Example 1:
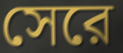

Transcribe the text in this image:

সেরে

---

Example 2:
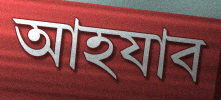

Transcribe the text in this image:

আহযাব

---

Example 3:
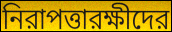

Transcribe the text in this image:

নিরাপত্তারক্ষীদের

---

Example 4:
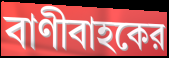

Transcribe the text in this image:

বাণীবাহকের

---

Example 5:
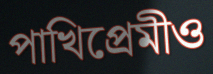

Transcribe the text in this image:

পাখিপ্রেমীও